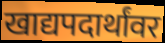
खाद्यपदार्थांवर